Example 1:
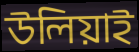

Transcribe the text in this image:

উলিয়াই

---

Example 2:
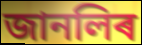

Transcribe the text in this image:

জানলিৰ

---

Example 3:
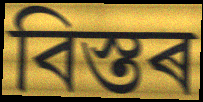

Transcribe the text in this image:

বিস্তৰ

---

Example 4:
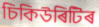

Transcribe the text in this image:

চিকিউৰিটিৰ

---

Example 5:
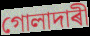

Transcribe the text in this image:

গোলাদাৰী